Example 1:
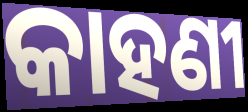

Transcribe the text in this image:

କାହଣୀ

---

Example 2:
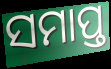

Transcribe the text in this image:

ସମାପ୍ତ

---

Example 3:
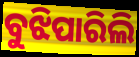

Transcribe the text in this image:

ବୁଝିପାରିଲି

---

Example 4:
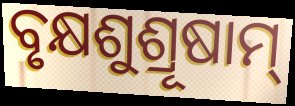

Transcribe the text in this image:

ବୃକ୍ଷଶୁଶ୍ରୂଷାମ୍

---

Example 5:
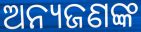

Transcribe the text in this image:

ଅନ୍ୟଜଣଙ୍କ